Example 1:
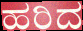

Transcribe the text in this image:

ಹರಿದ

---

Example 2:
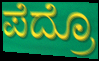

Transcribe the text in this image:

ಪೆದ್ರೊ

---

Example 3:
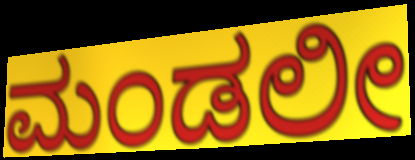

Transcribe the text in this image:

ಮಂಡಲೀ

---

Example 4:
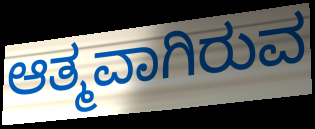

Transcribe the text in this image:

ಆತ್ಮವಾಗಿರುವ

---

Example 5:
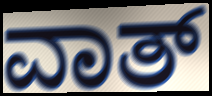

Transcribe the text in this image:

ವಾತ್